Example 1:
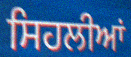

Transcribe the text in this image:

ਸਿਹਲੀਆਂ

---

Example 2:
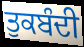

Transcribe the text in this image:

ਤੁਕਬੰਦੀ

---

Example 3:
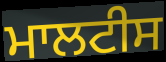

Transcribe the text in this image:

ਮਾਲਟੀਸ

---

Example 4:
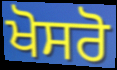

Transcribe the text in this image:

ਖੋਸਰੋ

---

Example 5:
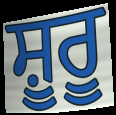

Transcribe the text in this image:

ਸ਼ੂਰੂ